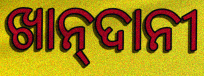
ଖାନ୍‍ଦାନୀ